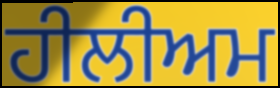
ਹੀਲੀਅਮ